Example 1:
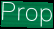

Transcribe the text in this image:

Prop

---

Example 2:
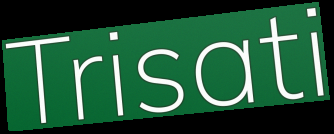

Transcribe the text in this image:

Trisati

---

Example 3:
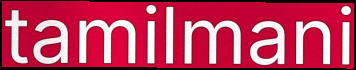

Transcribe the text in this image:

tamilmani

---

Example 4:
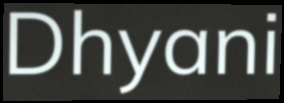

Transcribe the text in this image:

Dhyani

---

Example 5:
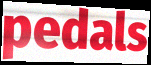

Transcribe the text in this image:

pedals